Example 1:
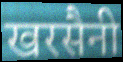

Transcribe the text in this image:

खरसैनी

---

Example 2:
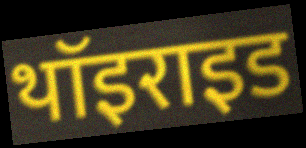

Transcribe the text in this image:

थॉइराइड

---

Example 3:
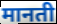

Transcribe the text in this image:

मानती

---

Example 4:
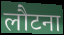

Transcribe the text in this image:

लौटना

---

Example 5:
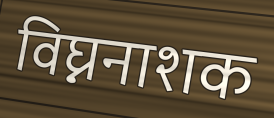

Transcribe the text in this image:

विघ्ननाशक